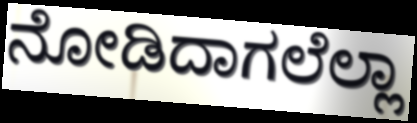
ನೋಡಿದಾಗಲೆಲ್ಲಾ